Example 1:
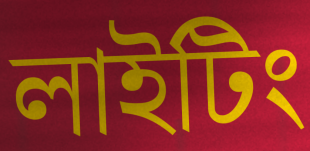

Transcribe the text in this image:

লাইটিং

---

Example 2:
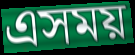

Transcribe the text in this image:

এসময়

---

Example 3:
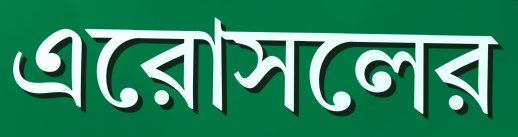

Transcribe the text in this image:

এরোসলের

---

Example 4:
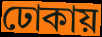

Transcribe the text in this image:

ঢোকায়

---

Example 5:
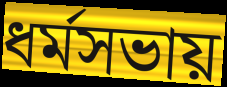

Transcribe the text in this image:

ধর্মসভায়